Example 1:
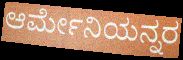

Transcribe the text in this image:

ಆರ್ಮೇನಿಯನ್ನರ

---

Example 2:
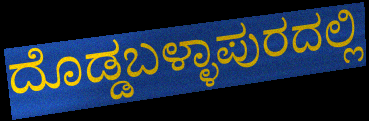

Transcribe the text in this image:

ದೊಡ್ಡಬಳ್ಳಾಪುರದಲ್ಲಿ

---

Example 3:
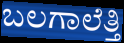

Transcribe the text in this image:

ಬಲಗಾಲೆತ್ತಿ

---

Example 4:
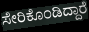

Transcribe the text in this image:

ಸೇರಿಕೊಂಡಿದ್ದಾರೆ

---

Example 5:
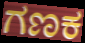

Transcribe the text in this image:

ಗಣಕ